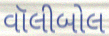
વૉલીબોલ